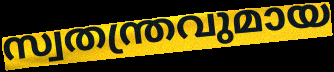
സ്വതന്ത്രവുമായ